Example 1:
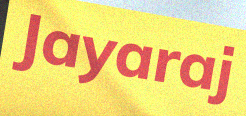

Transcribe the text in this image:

Jayaraj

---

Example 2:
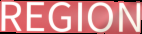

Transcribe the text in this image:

REGION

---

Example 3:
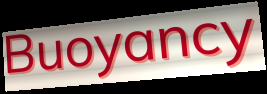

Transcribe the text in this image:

Buoyancy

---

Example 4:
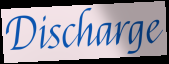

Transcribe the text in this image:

Discharge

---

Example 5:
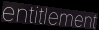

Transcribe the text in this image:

entitlement